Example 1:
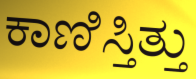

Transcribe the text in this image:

ಕಾಣಿಸ್ತಿತ್ತು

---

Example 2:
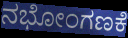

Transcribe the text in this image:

ನಭೋಂಗಣಕೆ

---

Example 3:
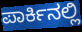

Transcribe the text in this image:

ಪಾರ್ಕಿನಲ್ಲಿ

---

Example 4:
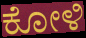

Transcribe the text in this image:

ಕೋಳಿ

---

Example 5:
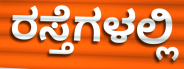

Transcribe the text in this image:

ರಸ್ತೆಗಳಲ್ಲಿ